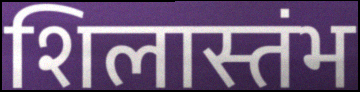
शिलास्तंभ